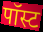
पॉस्ट